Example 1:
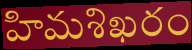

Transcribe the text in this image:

హిమశిఖరం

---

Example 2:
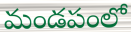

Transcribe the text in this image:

మండపంలో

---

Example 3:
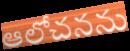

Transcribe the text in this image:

ఆలోచనను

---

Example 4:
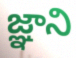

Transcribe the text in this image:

జ్ఞాని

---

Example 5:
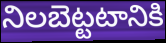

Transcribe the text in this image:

నిలబెట్టటానికి